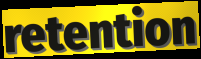
retention